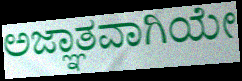
ಅಜ್ಞಾತವಾಗಿಯೇ